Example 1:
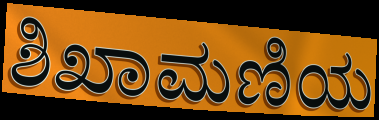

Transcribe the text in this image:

ಶಿಖಾಮಣಿಯ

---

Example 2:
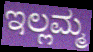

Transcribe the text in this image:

ಇಲ್ಲಮ್ಮ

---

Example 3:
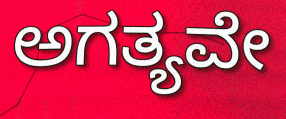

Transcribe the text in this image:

ಅಗತ್ಯವೇ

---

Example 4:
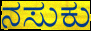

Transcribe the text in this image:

ನಸುಕು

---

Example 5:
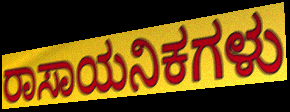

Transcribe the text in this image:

ರಾಸಾಯನಿಕಗಳು